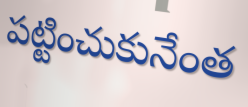
పట్టించుకునేంత